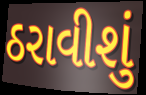
ઠરાવીશું